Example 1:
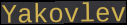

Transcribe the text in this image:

Yakovlev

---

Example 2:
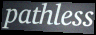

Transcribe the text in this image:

pathless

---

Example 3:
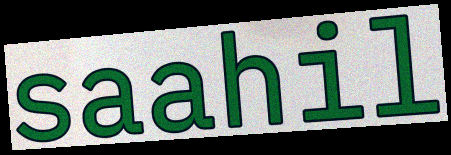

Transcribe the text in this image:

saahil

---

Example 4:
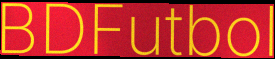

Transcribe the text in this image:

BDFutbol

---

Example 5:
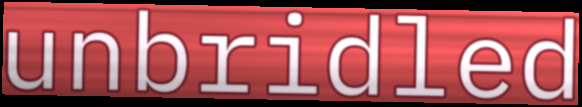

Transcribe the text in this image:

unbridled